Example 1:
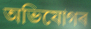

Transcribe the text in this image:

অভিযোগৰ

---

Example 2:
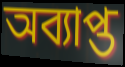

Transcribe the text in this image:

অব্যাপ্ত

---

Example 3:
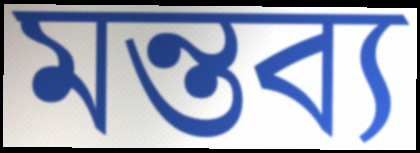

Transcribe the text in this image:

মন্তব্য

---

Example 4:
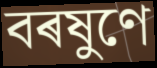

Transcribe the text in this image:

বৰষুণে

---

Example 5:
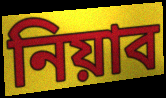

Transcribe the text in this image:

নিয়াব